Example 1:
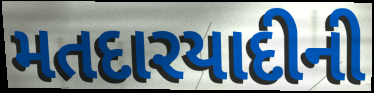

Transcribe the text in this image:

મતદારયાદીની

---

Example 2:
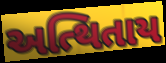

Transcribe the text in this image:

અત્થિતાય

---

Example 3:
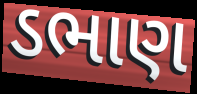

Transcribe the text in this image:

ડભાણ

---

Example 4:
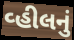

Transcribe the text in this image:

વ્હીલનું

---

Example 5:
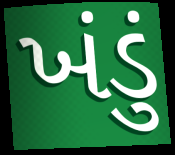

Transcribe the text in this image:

ખંડું